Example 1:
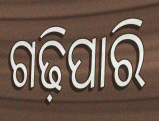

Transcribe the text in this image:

ଗଢ଼ିପାରି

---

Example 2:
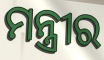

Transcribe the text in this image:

ମନ୍ତ୍ରୀର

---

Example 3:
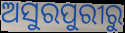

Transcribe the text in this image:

ଅସୁରପୁରୀରୁ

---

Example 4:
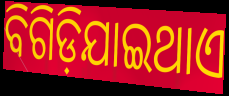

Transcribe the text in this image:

ବିଗିଡ଼ିଯାଇଥାଏ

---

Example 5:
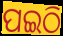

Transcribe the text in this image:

ପଇଠି